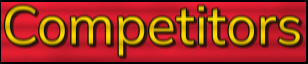
Competitors